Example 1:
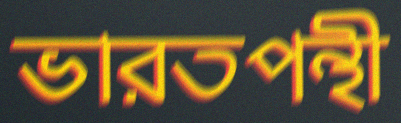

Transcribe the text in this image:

ভারতপন্থী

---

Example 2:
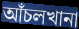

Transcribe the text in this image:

আঁচলখানা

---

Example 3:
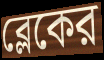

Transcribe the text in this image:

ব্লেকের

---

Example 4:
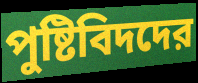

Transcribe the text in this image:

পুষ্টিবিদদের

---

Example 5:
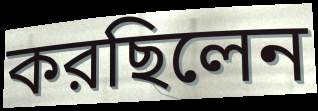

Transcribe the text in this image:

করছিলেন